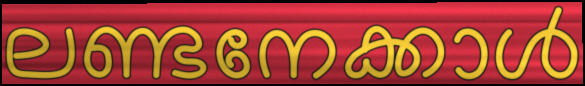
ലണ്ടനേക്കാൾ